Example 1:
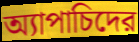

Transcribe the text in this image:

অ্যাপাচিদের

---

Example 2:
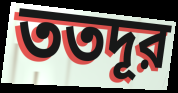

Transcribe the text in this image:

ততদূর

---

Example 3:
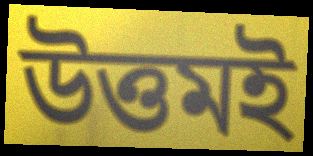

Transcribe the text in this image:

উত্তমই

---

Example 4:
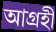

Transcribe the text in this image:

আগ্রহী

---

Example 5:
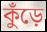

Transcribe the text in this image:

কুঁড়ে